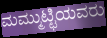
ಮಮ್ಮುಟ್ಟಿಯವರು